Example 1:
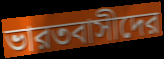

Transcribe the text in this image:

ভারতবাসীদের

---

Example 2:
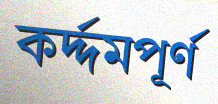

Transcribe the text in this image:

কর্দ্দমপূর্ণ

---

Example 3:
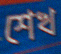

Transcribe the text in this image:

শেখ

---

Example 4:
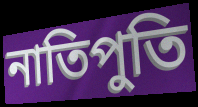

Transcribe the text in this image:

নাতিপুতি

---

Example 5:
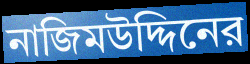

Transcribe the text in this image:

নাজিমউদ্দিনের